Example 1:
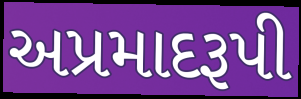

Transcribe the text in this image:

અપ્રમાદરૂપી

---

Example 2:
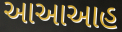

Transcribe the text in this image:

આઆઆહ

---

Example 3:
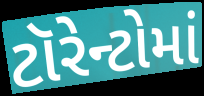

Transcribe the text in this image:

ટૉરેન્ટોમાં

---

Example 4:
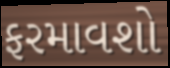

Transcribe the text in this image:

ફરમાવશો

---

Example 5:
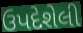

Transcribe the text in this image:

ઉપદેશેલી